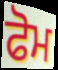
ਫੋਮ